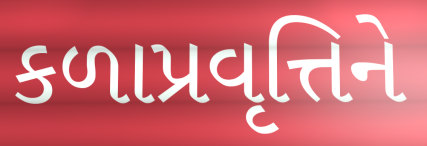
કળાપ્રવૃત્તિને